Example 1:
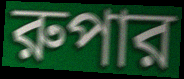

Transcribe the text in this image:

রুপার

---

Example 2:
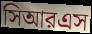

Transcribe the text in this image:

সিআরএস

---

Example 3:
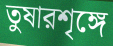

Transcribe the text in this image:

তুষারশৃঙ্গে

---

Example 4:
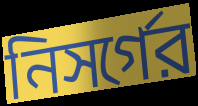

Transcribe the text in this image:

নিসর্গের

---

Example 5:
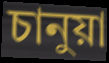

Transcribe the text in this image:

চানুয়া